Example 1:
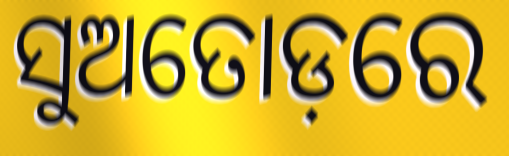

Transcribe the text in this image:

ସୁଅତୋଡ଼ରେ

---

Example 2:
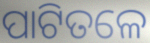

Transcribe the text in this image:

ପାଟିତଳେ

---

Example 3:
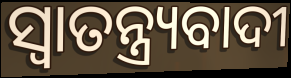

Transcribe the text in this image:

ସ୍ୱାତନ୍ତ୍ର୍ୟବାଦୀ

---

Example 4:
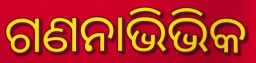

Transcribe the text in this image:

ଗଣନାଭିଭିକ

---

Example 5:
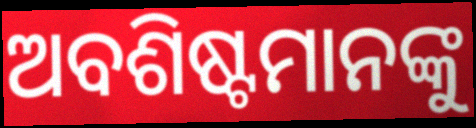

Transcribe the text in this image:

ଅବଶିଷ୍ଟମାନଙ୍କୁ